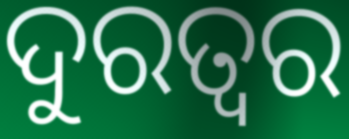
ଦୁରତ୍ଵର